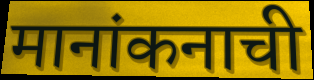
मानांकनाची